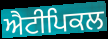
ਐਟੀਪਿਕਲ